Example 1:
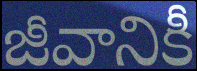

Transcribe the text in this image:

జీవానికీ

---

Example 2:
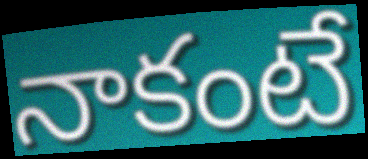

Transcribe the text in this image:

నాకంటే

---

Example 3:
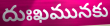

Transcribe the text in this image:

దుఃఖమునకు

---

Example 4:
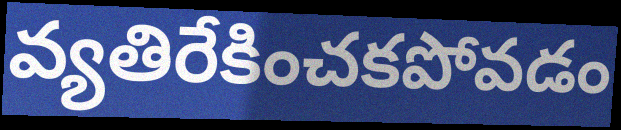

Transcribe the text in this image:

వ్యతిరేకించకపోవడం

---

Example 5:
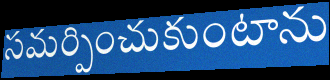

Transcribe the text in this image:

సమర్పించుకుంటాను